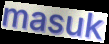
masuk